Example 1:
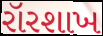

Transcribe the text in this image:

રૉરશાખ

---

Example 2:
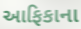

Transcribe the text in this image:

આફિકાના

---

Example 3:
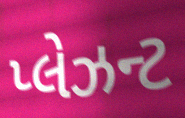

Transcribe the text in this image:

પ્લેઝન્ટ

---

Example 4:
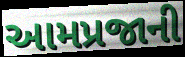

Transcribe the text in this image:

આમપ્રજાની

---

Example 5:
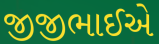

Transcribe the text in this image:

જીજીભાઈએ